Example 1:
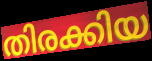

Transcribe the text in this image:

തിരക്കിയ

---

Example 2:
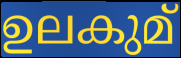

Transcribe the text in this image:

ഉലകുമ്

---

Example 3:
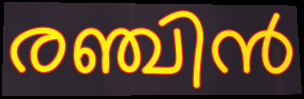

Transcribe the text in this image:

രഞ്ചിൻ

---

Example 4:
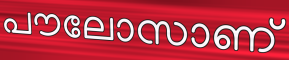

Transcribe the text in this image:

പൗലോസാണ്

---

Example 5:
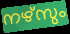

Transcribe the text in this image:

നഴ്സും